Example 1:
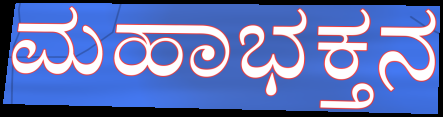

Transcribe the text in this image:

ಮಹಾಭಕ್ತನ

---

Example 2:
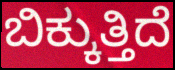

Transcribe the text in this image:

ಬಿಕ್ಕುತ್ತಿದೆ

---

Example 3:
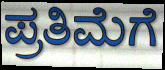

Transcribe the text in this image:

ಪ್ರತಿಮೆಗೆ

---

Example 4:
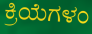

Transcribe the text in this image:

ಕ್ರಿಯೆಗಳಂ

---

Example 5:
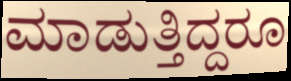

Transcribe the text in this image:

ಮಾಡುತ್ತಿದ್ದರೂ